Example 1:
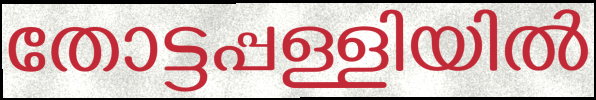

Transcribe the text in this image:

തോട്ടപ്പള്ളിയിൽ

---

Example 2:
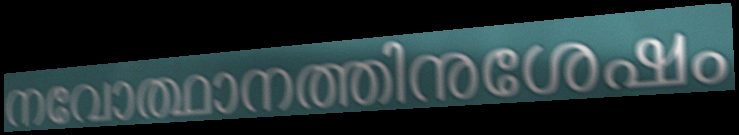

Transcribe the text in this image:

നവോത്ഥാനത്തിനുശേഷം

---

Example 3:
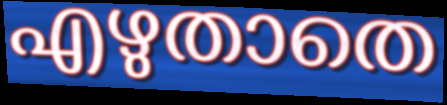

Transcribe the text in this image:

എഴുതാതെ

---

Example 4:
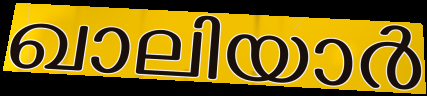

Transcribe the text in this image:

ഖാലിയാർ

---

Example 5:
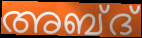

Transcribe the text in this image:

അബ്ദ്